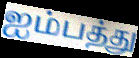
ஐம்பத்து